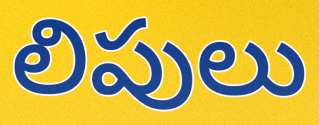
లిపులు